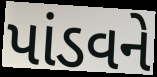
પાંડવને